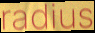
radius